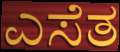
ಎಸೆತ